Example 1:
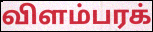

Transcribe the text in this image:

விளம்பரக்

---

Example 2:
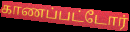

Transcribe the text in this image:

காணப்பட்டோர்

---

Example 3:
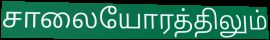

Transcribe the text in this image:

சாலையோரத்திலும்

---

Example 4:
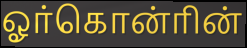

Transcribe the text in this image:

ஓர்கொன்ரின்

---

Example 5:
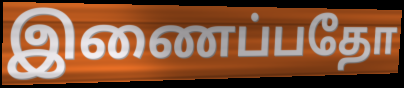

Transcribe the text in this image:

இணைப்பதோ